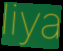
liya